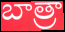
బాత్రా